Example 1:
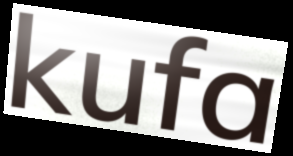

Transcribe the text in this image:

kufa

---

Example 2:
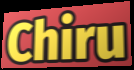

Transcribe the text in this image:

Chiru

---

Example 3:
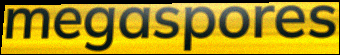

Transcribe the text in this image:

megaspores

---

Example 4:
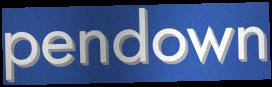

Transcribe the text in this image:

pendown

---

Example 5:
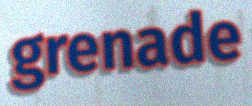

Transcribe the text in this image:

grenade